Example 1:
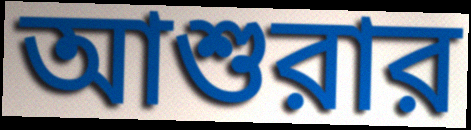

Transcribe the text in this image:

আশুরার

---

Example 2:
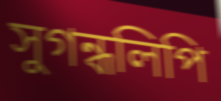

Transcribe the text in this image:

সুগন্ধলিপি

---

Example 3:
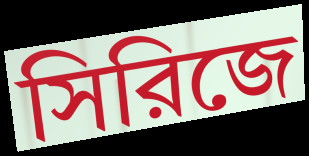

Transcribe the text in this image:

সিরিজে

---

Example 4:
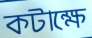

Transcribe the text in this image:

কটাক্ষে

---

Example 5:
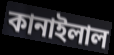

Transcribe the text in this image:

কানাইলাল